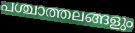
പശ്ചാത്തലങ്ങളും